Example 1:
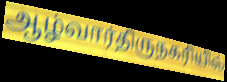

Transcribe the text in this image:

ஆழ்வார்திருநகரியில்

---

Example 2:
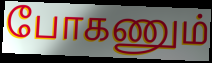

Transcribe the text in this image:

போகணும்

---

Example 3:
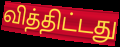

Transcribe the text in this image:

வித்திட்டது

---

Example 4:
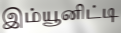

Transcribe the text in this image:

இம்யூனிட்டி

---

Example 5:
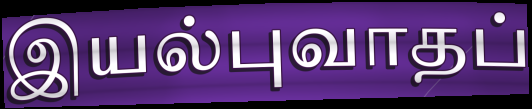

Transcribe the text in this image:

இயல்புவாதப்